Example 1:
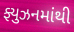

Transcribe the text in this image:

ફ્યુઝનમાંથી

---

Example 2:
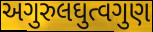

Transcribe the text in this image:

અગુરુલઘુત્વગુણ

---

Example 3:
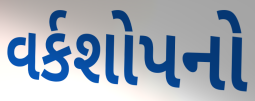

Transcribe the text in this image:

વર્કશોપનો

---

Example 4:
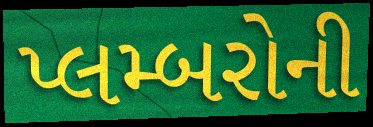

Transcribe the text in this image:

પ્લમ્બરોની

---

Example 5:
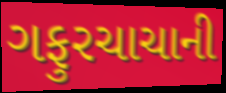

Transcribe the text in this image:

ગફુરચાચાની